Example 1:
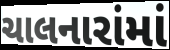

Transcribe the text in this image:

ચાલનારાંમાં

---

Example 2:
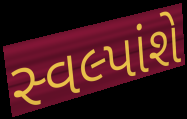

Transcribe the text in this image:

સ્વલ્પાંશે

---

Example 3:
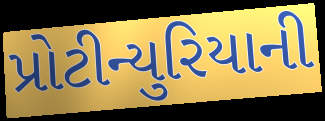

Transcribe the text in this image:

પ્રોટીન્યુરિયાની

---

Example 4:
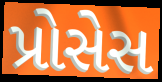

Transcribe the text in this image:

પ્રોસેસ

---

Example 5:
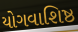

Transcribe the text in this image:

યોગવાશિષ્ઠ